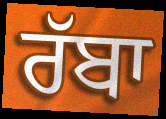
ਰੱਬਾ